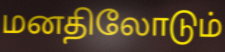
மனதிலோடும்